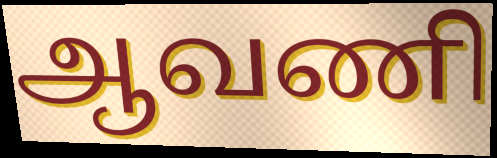
ஆவணி